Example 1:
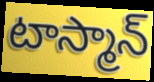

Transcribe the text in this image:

టాస్మాన్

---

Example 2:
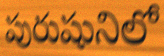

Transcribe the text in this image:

పురుషునిలో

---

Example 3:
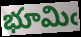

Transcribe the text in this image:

భూమిఁ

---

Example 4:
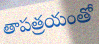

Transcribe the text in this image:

తాపత్రయంతో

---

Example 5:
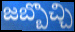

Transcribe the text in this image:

జబ్బొచ్చి